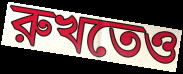
রুখতেও